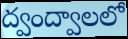
ద్వంద్వాలలో